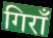
गिराँ